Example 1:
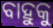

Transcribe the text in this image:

ବାହୁକୁ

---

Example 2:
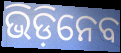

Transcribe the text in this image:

ଭିଡ଼ିନେବ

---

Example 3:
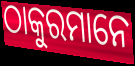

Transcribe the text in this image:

ଠାକୁରମାନେ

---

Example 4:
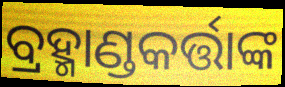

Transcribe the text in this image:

ବ୍ରହ୍ମାଣ୍ଡକର୍ତ୍ତାଙ୍କ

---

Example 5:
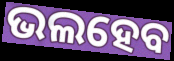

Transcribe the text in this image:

ଭଲହେବ